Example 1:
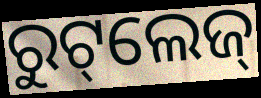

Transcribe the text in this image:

ରୁଟ୍‌ଲେଜ୍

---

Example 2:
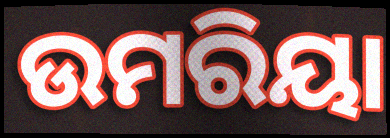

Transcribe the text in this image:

ଉମରିୟା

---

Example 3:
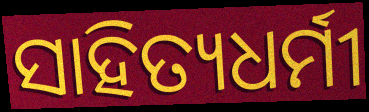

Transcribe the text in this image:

ସାହିତ୍ୟଧର୍ମୀ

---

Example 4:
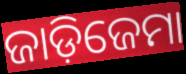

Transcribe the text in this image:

ଜାଡ଼ିଜେମା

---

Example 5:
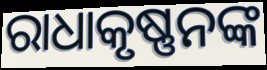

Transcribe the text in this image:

ରାଧାକୃଷ୍ଣନଙ୍କ